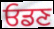
ਓਡਣ